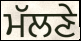
ਮੱਲਣੇ